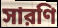
সারণি